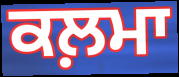
ਕਲ਼ਮਾ